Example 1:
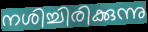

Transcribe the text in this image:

നശിച്ചിരിക്കുന്നു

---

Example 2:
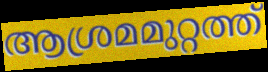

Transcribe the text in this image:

ആശ്രമമുറ്റത്ത്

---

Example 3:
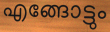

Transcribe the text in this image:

എങ്ങോട്ടും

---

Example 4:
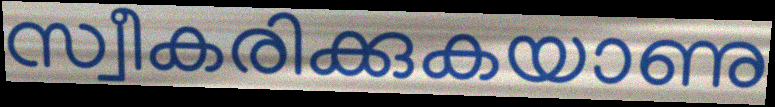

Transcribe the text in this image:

സ്വീകരിക്കുകയാണു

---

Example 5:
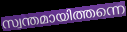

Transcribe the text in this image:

സ്വന്തമായിത്തന്നെ